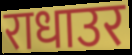
राधाउर